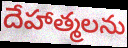
దేహాత్మలను